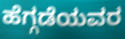
ಹೆಗ್ಗಡೆಯವರ